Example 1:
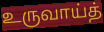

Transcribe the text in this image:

உருவாய்த்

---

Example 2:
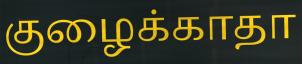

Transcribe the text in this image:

குழைக்காதா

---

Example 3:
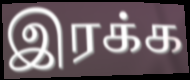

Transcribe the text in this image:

இரக்க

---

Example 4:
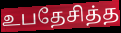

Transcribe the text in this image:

உபதேசித்த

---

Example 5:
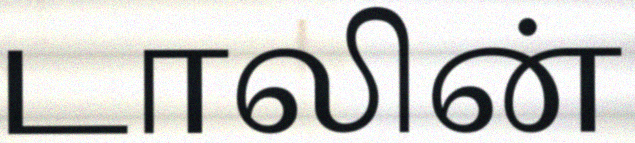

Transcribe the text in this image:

டாலின்